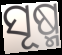
ସୂଷ୍ମ